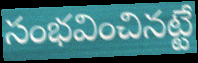
సంభవించినట్టే